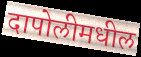
दापोलीमधील